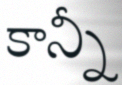
కాన్నీ